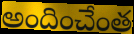
అందించేంత